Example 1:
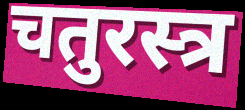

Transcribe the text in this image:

चतुरस्त्र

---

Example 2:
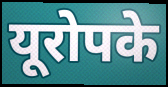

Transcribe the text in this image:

यूरोपके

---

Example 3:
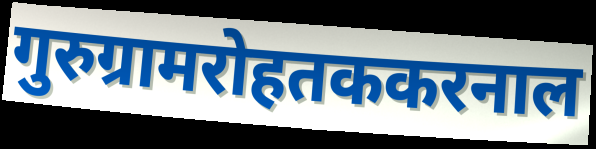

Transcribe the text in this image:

गुरुग्रामरोहतककरनाल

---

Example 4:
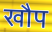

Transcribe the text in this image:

खौप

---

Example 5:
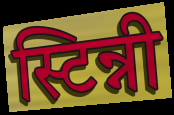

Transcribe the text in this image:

स्टिन्नी